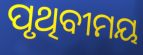
ପୃଥିବୀମୟ